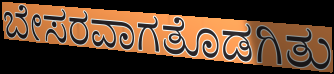
ಬೇಸರವಾಗತೊಡಗಿತು